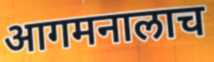
आगमनालाच